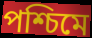
পশ্চিমে